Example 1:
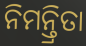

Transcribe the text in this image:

ନିମନ୍ତ୍ରିତା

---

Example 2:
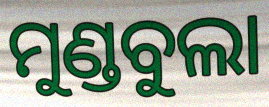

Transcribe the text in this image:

ମୁଣ୍ଡବୁଲା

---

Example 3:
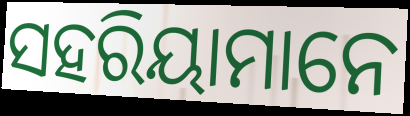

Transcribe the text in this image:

ସହରିୟାମାନେ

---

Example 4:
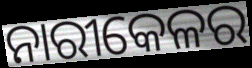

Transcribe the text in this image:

ନାରୀକେଳର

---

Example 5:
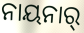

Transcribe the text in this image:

ନାୟନାର୍